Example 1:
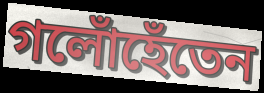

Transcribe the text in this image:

গলোঁহেঁতেন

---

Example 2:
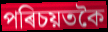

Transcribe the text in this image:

পৰিচয়তকৈ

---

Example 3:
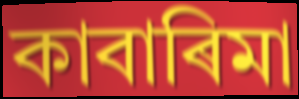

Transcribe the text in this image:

কাবাৰিমা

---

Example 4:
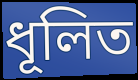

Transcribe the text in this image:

ধূলিত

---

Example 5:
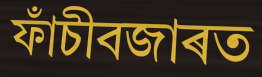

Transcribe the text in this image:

ফাঁচীবজাৰত